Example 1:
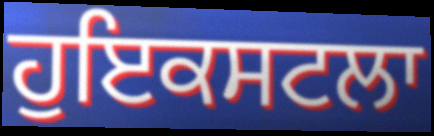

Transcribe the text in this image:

ਹੁਇਕਸਟਲਾ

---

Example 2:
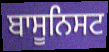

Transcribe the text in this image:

ਬਾਸੂਨਿਸਟ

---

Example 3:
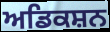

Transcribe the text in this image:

ਅਡਿਕਸ਼ਨ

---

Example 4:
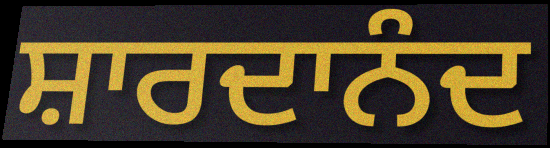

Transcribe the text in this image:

ਸ਼ਾਰਦਾਨੰਦ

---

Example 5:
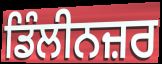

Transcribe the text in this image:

ਡਿੰਲੀਨਜ਼ਰ